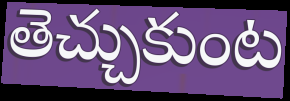
తెచ్చుకుంట